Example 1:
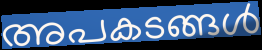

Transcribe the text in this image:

അപകടങ്ങൾ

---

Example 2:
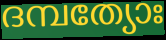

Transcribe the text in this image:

ദമ്പത്യോഃ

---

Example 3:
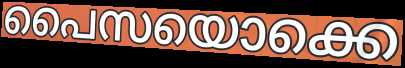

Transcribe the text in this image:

പൈസയൊക്കെ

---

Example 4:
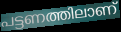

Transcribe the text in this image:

പട്ടണത്തിലാണ്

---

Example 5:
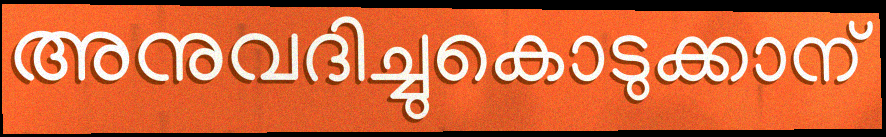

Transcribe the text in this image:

അനുവദിച്ചുകൊടുക്കാന്